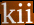
kii